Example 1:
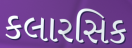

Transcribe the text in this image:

કલારસિક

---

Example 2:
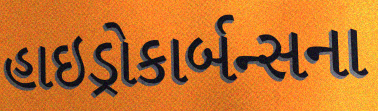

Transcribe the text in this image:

હાઇડ્રોકાર્બન્સના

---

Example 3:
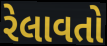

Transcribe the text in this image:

રેલાવતો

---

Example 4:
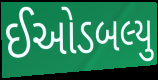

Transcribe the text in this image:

ઈઓડબલ્યુ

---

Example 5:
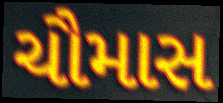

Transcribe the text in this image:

ચૌમાસ